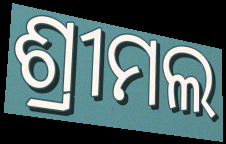
ଶ୍ରୀମଲ